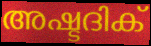
അഷ്ടദിക്